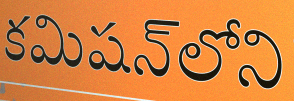
కమిషన్‌లోని